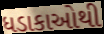
ધડાકાઓથી